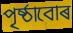
পৃষ্ঠাবোৰ